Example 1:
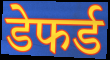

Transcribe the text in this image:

डेफर्ड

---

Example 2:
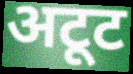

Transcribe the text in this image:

अटूट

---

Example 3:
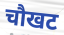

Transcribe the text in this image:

चौखट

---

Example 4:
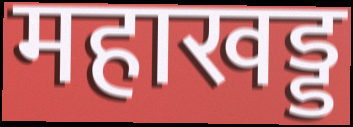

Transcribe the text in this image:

महाखड्ड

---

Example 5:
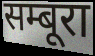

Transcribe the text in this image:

सम्बूरा